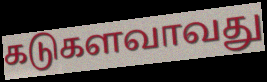
கடுகளவாவது